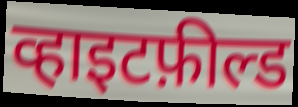
व्हाइटफ़ील्ड